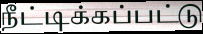
நீட்டிக்கப்பட்டு